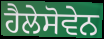
ਹੈਲੇਸੋਵੇਨ